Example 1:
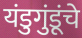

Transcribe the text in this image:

यंडुगुंडूंचे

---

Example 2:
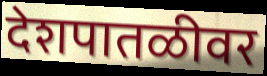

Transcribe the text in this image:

देशपातळीवर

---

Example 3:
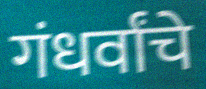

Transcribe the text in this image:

गंधर्वांचे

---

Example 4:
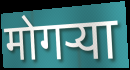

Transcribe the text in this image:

मोगऱ्या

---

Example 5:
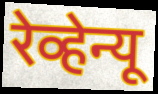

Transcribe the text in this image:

रेव्हेन्यू